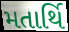
મતાર્થિ